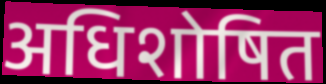
अधिशोषित